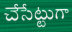
చేసేట్టుగా